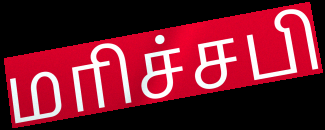
மரிச்சபி